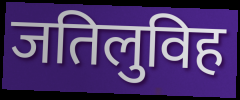
जतिलुविह